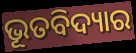
ଭୂତବିଦ୍ୟାର